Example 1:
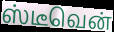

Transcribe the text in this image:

ஸ்டீவென்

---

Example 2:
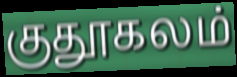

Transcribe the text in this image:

குதூகலம்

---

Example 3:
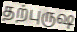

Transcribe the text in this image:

தற்புருஷ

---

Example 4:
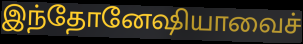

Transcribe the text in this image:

இந்தோனேஷியாவைச்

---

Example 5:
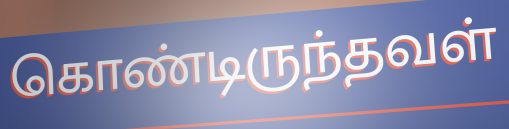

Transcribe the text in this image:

கொண்டிருந்தவள்